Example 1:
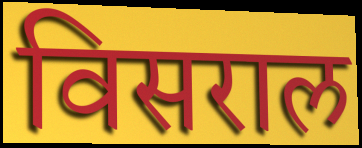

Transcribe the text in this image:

विसराल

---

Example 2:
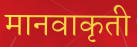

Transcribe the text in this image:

मानवाकृती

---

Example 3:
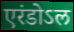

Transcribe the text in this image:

एरंडोऽल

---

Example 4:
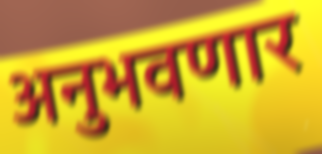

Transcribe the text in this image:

अनुभवणार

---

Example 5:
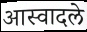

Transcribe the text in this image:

आस्वादले